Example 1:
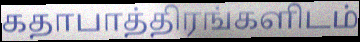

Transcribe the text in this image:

கதாபாத்திரங்களிடம்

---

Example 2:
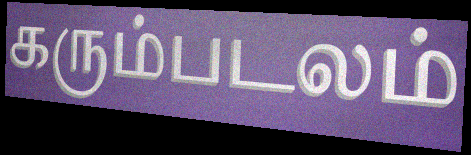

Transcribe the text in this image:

கரும்படலம்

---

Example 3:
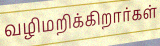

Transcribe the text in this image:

வழிமறிக்கிறார்கள்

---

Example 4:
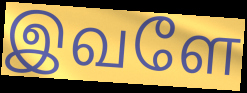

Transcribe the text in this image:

இவளே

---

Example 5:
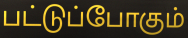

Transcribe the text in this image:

பட்டுப்போகும்